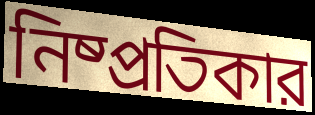
নিষ্প্রতিকার